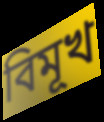
বিমূখ